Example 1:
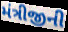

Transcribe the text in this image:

મંત્રીજીની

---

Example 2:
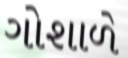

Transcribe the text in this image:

ગોશાળે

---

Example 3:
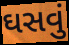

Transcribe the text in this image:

ઘસવું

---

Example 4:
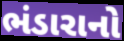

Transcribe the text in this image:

ભંડારાનો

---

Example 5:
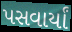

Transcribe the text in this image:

પસવાર્યાં